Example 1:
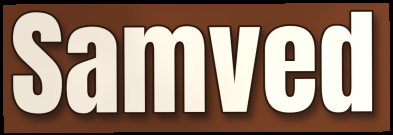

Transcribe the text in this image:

Samved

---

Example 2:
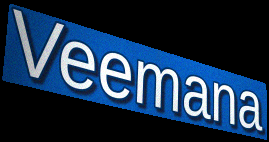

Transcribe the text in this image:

Veemana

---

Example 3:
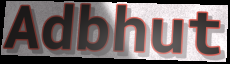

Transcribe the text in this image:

Adbhut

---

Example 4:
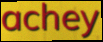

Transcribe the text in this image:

achey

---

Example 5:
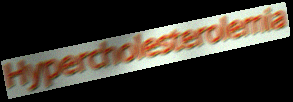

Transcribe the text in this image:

Hypercholesterolemia